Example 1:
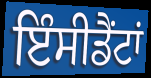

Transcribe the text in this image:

ਇੰਸੀਡੈਂਟਾਂ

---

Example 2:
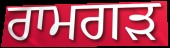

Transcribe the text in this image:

ਰਾਮਗੜ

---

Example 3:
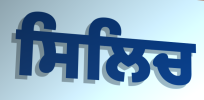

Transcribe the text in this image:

ਸਿਲਿਚ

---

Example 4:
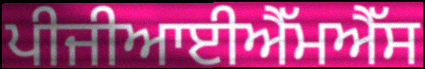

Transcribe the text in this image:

ਪੀਜੀਆਈਐੱਮਐੱਸ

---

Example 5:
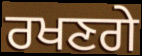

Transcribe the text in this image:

ਰਖਣਗੇ